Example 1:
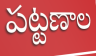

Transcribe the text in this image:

పట్టణాల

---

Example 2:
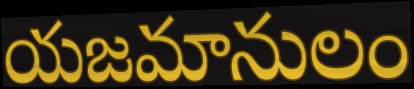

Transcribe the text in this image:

యజమానులం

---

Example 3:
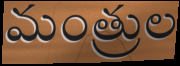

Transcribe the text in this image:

మంత్రుల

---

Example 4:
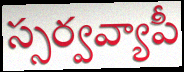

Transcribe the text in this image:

స్సర్వవ్యాపీ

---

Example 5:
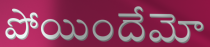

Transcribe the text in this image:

పోయిందేమో